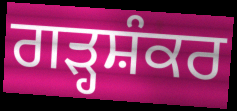
ਗੜ੍ਹਸ਼ੰਕਰ